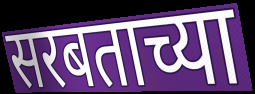
सरबताच्या